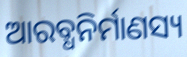
ଆରବ୍ଧନିର୍ମାଣସ୍ୟ